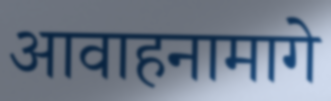
आवाहनामागे